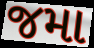
જમા